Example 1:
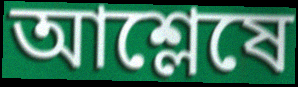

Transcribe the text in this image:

আশ্লেষে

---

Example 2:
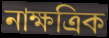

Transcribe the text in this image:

নাক্ষত্রিক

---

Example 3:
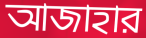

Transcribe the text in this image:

আজাহার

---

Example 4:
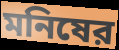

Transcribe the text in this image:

মনিষের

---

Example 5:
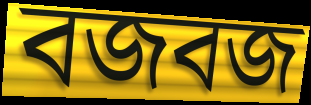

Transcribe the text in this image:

বজবজ